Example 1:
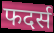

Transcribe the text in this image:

फदर्स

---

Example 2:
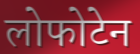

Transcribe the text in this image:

लोफोटेन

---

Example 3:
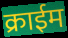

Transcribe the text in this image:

क्राईम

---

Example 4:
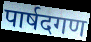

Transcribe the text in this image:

पार्षदगण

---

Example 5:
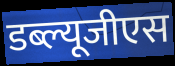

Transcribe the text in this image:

डब्ल्यूजीएस